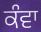
ਕੰਵਾ